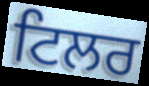
ਟਿਲਰ